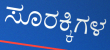
ಸೂರಕ್ಕಿಗಳ